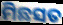
ମିଛସତ